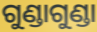
ଗୁଣ୍ଡାଗୁଣ୍ଡା